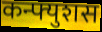
कन्फ्युशस